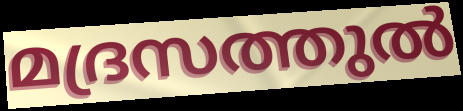
മദ്രസത്തുൽ